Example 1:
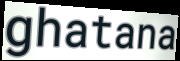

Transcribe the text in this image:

ghatana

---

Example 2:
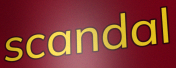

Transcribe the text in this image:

scandal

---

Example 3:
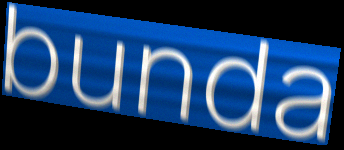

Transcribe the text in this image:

bunda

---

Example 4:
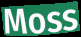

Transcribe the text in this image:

Moss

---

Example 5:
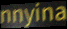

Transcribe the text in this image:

nnyina